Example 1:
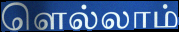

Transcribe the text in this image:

ளெல்லாம்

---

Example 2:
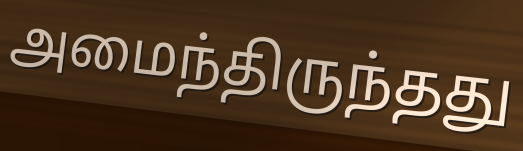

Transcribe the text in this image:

அமைந்திருந்தது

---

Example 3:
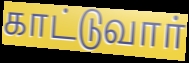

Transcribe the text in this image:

காட்டுவார்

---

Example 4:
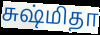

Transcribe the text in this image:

சுஷ்மிதா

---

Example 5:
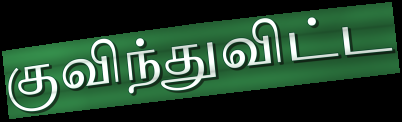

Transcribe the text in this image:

குவிந்துவிட்ட